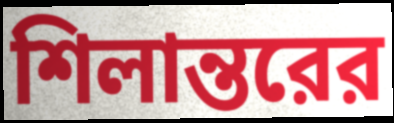
শিলান্তরের